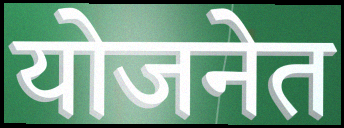
योजनेत